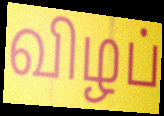
விழப்